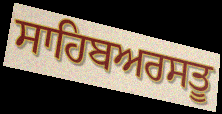
ਸਾਹਿਬਅਰਸਤੂ